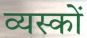
व्यस्कों